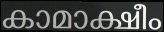
കാമാക്ഷീം